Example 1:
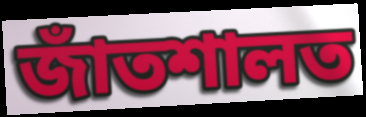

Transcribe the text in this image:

জাঁতশালত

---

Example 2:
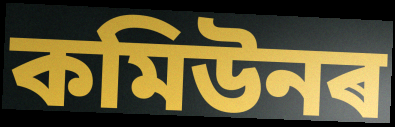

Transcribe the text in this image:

কমিউনৰ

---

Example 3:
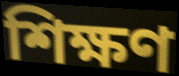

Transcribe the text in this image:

শিক্ষণ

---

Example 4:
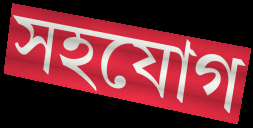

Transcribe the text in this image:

সহযোগ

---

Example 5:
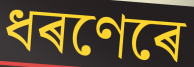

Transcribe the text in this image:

ধৰণেৰে